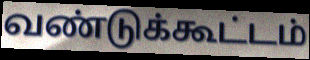
வண்டுக்கூட்டம்